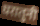
घरातुनी